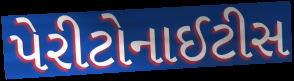
પેરીટોનાઈટીસ